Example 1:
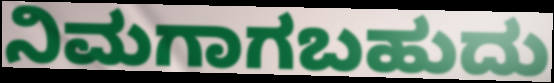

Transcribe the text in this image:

ನಿಮಗಾಗಬಹುದು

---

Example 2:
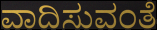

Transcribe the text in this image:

ವಾದಿಸುವಂತೆ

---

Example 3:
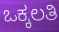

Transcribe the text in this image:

ಒಕ್ಕಲತಿ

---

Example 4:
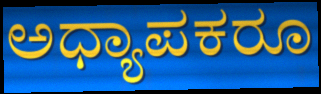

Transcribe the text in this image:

ಅಧ್ಯಾಪಕರೂ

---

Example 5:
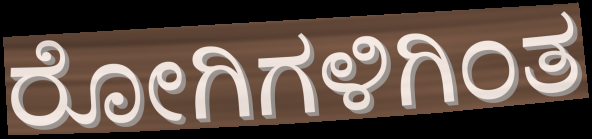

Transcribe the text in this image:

ರೋಗಿಗಳಿಗಿಂತ